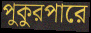
পুকুরপারে